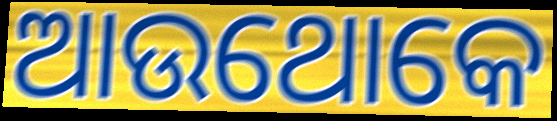
ଆଉଥୋକେ